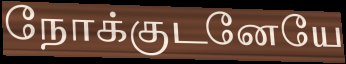
நோக்குடனேயே